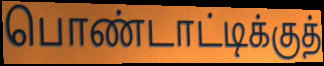
பொண்டாட்டிக்குத்